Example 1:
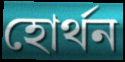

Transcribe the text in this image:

হোর্থন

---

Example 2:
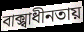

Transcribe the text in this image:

বাক্স্বাধীনতায়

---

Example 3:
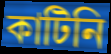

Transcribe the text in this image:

কাটিনি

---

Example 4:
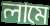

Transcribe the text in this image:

লামে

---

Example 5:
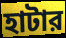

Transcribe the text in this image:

হাটার